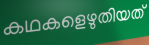
കഥകളെഴുതിയത്